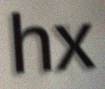
hx